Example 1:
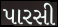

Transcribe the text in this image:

પારસી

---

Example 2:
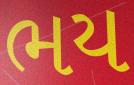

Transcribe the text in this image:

ભય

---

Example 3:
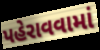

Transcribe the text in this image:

પહેરાવવામાં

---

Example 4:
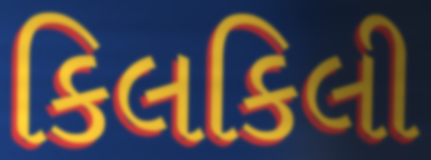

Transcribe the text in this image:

કિલકિલી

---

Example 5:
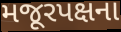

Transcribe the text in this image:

મજૂરપક્ષના